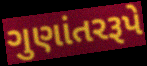
ગુણાંતરરૂપે